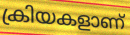
ക്രിയകളാണ്